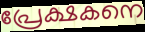
പ്രേക്ഷകനെ